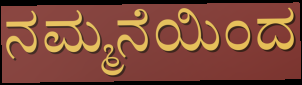
ನಮ್ಮನೆಯಿಂದ